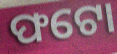
ଫଟୋ